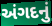
અંગદનું